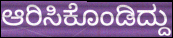
ಆರಿಸಿಕೊಂಡಿದ್ದು